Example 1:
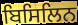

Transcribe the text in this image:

ਬਿਸਿਲਿਨ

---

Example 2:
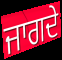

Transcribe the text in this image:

ਜਾਗਦੇ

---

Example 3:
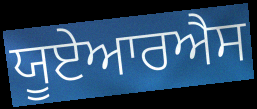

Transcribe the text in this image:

ਯੂਏਆਰਐਸ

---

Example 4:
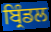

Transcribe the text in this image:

ਬ੍ਰਿੰਡਲ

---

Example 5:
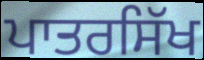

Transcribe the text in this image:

ਪਾਤਰਸਿੱਖ